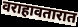
वराहावतारात